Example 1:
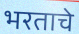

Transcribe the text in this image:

भरताचे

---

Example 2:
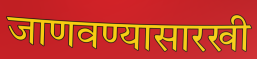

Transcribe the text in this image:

जाणवण्यासारखी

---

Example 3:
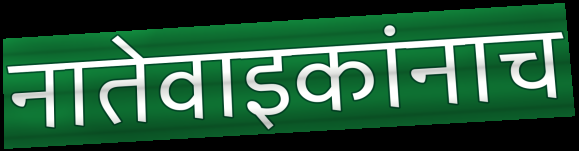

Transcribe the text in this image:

नातेवाइकांनाच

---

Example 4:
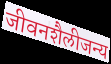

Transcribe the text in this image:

जीवनशैलीजन्य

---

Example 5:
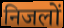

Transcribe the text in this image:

निजलों